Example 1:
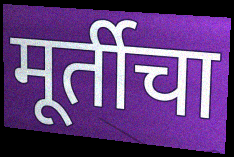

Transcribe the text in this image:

मूर्तीचा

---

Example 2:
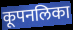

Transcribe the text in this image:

कूपनलिका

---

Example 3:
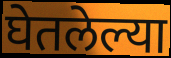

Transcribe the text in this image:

घेतलेल्या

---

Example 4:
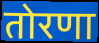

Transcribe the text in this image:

तोरणा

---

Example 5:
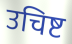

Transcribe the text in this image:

उचिष्ट